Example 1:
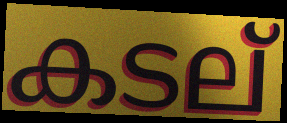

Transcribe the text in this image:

കടല്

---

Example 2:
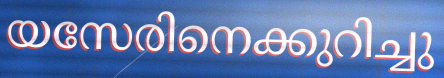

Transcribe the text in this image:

യസേരിനെക്കുറിച്ചു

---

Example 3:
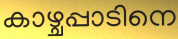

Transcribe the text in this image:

കാഴ്ചപ്പാടിനെ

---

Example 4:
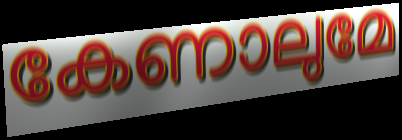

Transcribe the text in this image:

കേണാലുമേ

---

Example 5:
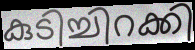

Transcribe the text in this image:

കുടിച്ചിറക്കി